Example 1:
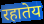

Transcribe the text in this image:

रहातेय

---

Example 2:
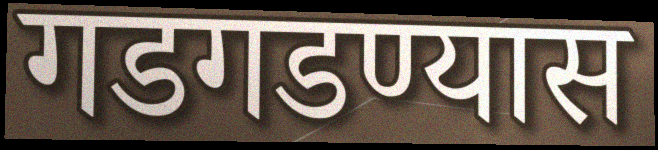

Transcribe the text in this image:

गडगडण्यास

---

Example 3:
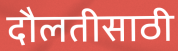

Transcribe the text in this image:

दौलतीसाठी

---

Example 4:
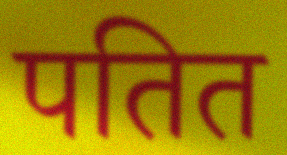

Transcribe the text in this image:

पतित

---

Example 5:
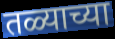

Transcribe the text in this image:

तळ्याच्या